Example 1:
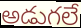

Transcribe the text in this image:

అడుగలే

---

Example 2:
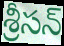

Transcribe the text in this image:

శ్రీసన్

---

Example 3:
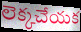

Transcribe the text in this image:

లెక్కచేయక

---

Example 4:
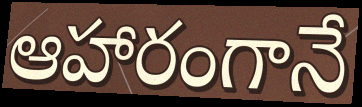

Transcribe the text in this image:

ఆహారంగానే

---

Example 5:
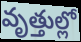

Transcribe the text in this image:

వృత్తుల్లో